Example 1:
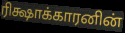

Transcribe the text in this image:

ரிக்ஷாக்காரனின்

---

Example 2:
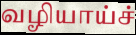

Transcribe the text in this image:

வழியாய்ச்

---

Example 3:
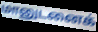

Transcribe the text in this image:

மானுடனைக்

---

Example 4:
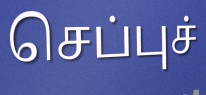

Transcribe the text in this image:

செப்புச்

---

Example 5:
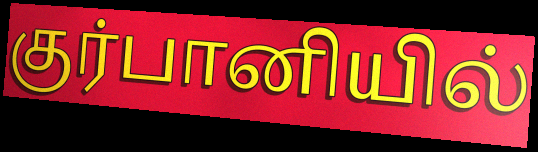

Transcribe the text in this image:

குர்பானியில்